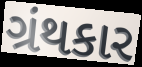
ગ્રંથકાર